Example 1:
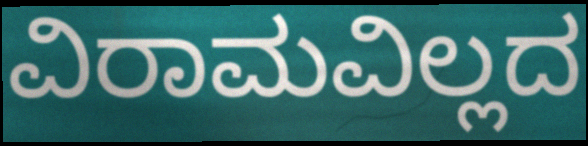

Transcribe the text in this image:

ವಿರಾಮವಿಲ್ಲದ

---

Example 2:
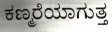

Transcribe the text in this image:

ಕಣ್ಮರೆಯಾಗುತ್ತ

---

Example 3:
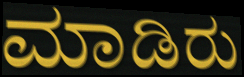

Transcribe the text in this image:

ಮಾಡಿರು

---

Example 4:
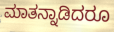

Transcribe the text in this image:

ಮಾತನ್ನಾಡಿದರೂ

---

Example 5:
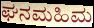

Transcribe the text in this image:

ಘನಮಹಿಮ